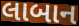
લાબાન